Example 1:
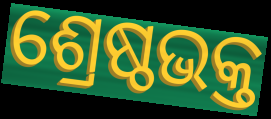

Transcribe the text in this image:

ଶ୍ରେଷ୍ଠଭକ୍ତ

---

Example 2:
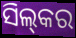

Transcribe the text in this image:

ସିଲ୍‍କର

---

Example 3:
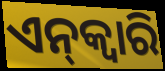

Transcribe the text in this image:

ଏନ୍‌କ୍ୱାରି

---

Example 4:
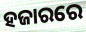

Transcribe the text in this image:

ହଜାରରେ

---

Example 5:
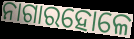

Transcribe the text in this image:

ନାଗାରହୋଳେ